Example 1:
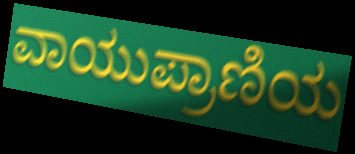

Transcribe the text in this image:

ವಾಯುಪ್ರಾಣಿಯ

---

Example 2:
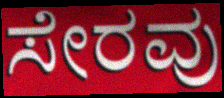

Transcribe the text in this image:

ಸೇರವು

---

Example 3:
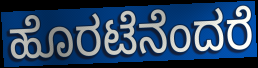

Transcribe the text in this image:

ಹೊರಟೆನೆಂದರೆ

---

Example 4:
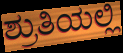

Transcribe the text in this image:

ಶ್ರುತಿಯಲ್ಲಿ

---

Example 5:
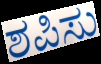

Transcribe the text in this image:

ಶಪಿಸು